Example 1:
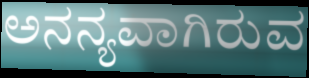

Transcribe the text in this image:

ಅನನ್ಯವಾಗಿರುವ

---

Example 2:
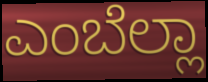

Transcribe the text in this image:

ಎಂಬೆಲ್ಲಾ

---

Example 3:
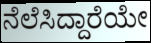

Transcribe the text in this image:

ನೆಲೆಸಿದ್ದಾರೆಯೇ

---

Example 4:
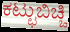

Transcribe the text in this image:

ಕಟ್ಟುಬಿಚ್ಚಿ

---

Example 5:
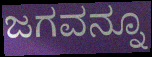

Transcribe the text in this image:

ಜಗವನ್ನೂ